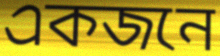
একজনে